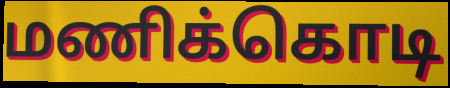
மணிக்கொடி